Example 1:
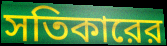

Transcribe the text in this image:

সতিকারের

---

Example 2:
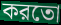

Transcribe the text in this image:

করতো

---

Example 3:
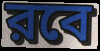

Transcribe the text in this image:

রবে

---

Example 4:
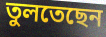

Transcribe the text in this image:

তুলতেছেন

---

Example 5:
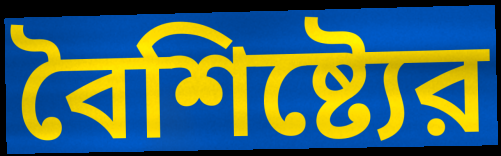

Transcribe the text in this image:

বৈশিষ্ট্যের